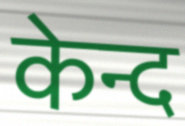
केन्द